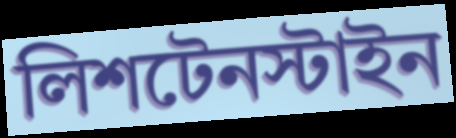
লিশটেনস্টাইন